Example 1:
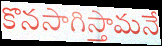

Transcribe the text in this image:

కొనసాగిస్తామనే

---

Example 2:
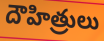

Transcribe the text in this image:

దౌహిత్రులు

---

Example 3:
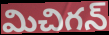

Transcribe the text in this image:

మిచిగన్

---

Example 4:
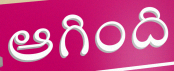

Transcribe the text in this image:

ఆగింది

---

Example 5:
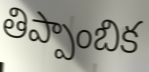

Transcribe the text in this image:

తిప్పాంబిక